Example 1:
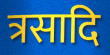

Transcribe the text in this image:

त्रसादि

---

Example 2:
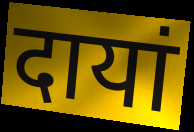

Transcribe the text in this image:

दायां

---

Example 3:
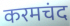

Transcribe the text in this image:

करमचंद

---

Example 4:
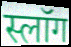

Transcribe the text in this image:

स्लॉग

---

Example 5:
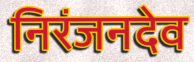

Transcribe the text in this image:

निरंजनदेव